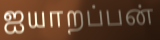
ஐயாறப்பன்